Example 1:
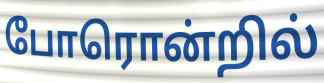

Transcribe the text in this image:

போரொன்றில்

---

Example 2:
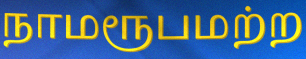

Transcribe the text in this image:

நாமரூபமற்ற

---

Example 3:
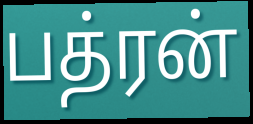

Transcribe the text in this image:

பத்ரன்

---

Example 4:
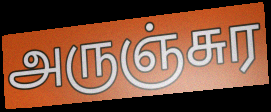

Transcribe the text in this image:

அருஞ்சுர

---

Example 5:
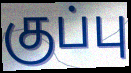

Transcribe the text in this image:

குப்பு